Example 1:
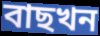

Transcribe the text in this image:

বাছখন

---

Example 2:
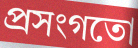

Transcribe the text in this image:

প্ৰসংগতো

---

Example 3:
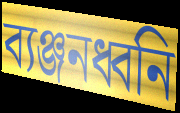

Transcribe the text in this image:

ব্যঞ্জনধ্বনি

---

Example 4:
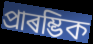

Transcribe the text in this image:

প্ৰাৰম্ভিক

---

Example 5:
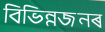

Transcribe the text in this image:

বিভিন্নজনৰ